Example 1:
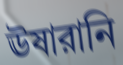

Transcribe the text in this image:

ঊষারানি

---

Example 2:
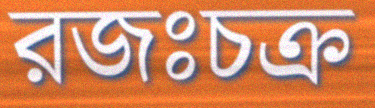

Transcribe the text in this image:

রজঃচক্র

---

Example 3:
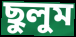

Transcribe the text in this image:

ছুলুম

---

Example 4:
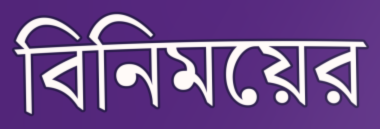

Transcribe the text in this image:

বিনিময়ের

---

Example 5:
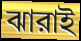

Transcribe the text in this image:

ঝারাই